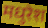
मधुरेश